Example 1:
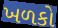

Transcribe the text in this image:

ખળકો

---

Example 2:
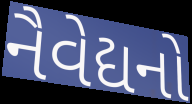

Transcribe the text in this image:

નૈવેદ્યનો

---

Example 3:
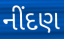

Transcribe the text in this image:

નીંદણ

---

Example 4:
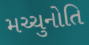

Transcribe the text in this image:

મચ્ચુનોતિ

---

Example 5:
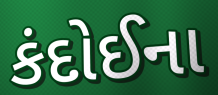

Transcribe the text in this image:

કંદોઈના